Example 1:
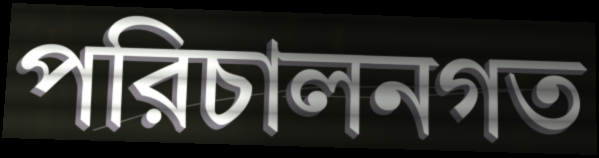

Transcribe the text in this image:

পরিচালনগত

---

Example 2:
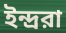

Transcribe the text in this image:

ইন্দ্ররা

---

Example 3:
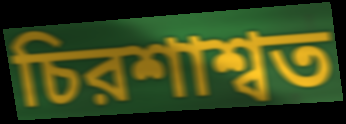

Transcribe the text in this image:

চিরশাশ্বত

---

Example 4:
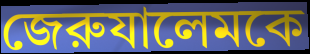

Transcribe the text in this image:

জেরুযালেমকে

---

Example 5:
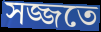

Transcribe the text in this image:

সজ্জতে